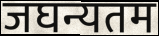
जघन्यतम